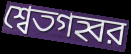
শ্বেতগহ্বর